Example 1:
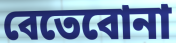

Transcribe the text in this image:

বেতেবোনা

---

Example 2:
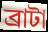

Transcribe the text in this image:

ব্রাটা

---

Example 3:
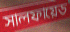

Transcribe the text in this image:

সালফায়েড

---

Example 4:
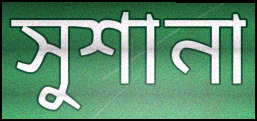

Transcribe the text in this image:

সুশানা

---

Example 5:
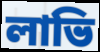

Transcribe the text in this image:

লাভি